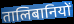
तालिबानियों